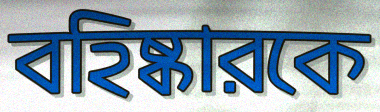
বহিষ্কারকে